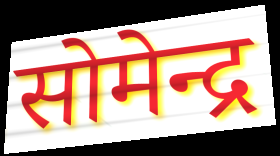
सोमेन्द्र